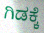
ಗಿಡಕ್ಕೆ